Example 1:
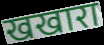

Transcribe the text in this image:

खखारा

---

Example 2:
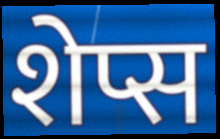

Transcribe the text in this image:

शेप्स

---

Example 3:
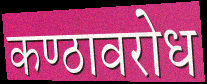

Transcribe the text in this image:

कण्ठावरोध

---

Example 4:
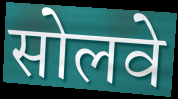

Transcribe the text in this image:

सोलवे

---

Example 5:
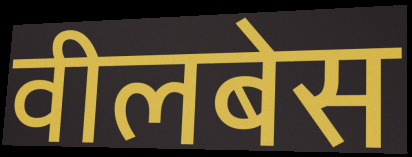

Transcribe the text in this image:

वीलबेस